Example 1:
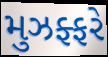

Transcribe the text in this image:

મુઝફ્ફરે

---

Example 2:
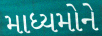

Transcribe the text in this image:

માધ્યમોને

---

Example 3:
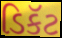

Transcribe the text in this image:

ડિકૅટ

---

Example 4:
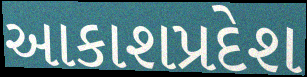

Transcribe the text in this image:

આકાશપ્રદેશ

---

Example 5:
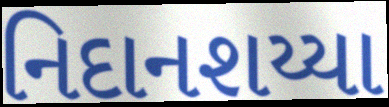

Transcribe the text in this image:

નિદાનશય્યા